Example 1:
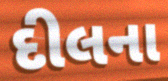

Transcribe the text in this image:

દીલના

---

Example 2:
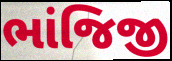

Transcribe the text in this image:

ભાંજિજી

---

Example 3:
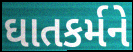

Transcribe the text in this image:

ઘાતકર્મને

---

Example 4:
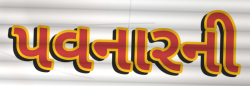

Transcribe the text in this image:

પવનારની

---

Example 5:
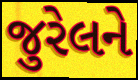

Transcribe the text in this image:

જુરેલને